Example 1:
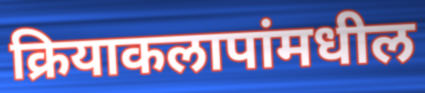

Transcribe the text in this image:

क्रियाकलापांमधील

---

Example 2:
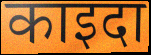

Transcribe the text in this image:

काइदा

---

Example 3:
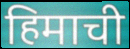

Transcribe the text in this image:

हिमाची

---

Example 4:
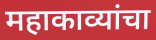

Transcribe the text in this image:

महाकाव्यांचा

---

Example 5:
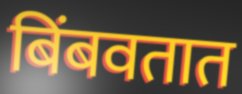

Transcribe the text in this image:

बिंबवतात